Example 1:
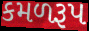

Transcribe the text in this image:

કમળરૂપ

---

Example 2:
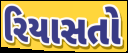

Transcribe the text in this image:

રિયાસતો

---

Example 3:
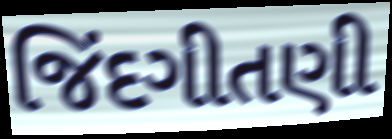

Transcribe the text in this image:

જિંદગીતણી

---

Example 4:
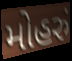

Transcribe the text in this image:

મોહરું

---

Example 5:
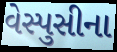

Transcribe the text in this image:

વેસ્પુસીના